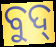
ବୁଦ୍